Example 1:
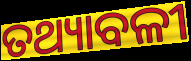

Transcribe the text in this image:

ତଥ୍ୟାବଳୀ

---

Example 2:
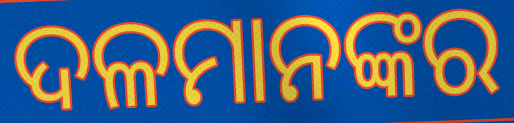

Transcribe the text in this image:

ଦଳମାନଙ୍କର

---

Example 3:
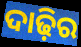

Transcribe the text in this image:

ଦାଢ଼ିର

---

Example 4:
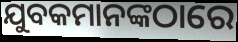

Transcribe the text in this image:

ଯୁବକମାନଙ୍କଠାରେ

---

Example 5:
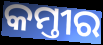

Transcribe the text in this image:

କମ୍ତୀର